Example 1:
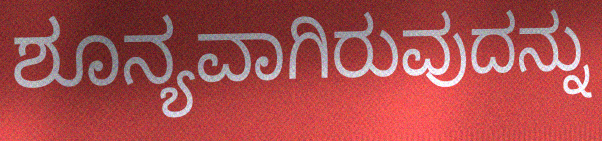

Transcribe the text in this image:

ಶೂನ್ಯವಾಗಿರುವುದನ್ನು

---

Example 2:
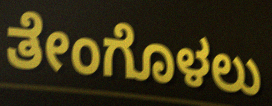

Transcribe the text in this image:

ತೇಂಗೊಳಲು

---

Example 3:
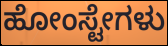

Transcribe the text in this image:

ಹೋಂಸ್ಟೇಗಳು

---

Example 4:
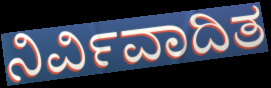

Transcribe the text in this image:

ನಿರ್ವಿವಾದಿತ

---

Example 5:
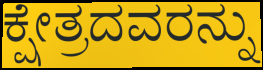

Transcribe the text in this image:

ಕ್ಷೇತ್ರದವರನ್ನು